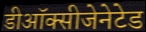
डीऑक्सीजेनेटेड